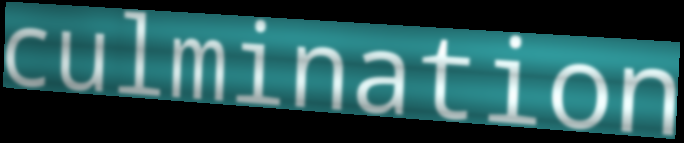
culmination